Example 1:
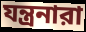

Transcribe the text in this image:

যন্ত্রনারা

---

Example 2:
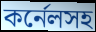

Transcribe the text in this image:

কর্নেলসহ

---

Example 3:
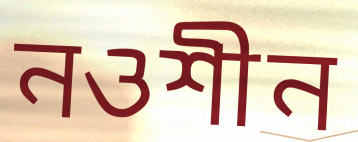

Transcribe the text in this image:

নওশীন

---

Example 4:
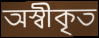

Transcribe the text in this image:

অস্বীকৃত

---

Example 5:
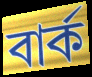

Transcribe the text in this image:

বার্ক